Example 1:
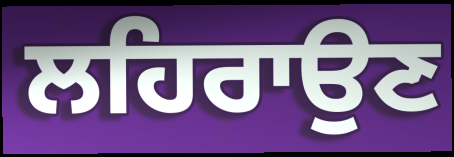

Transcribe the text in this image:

ਲਹਿਰਾਉਣ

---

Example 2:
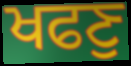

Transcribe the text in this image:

ਖਫਣੁ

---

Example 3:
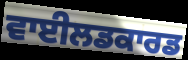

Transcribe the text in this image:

ਵਾਈਲਡਕਾਰਡ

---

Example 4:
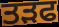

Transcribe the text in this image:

ਤੜਫ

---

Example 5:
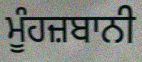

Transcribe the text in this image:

ਮੂੰਹਜ਼ਬਾਨੀ